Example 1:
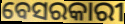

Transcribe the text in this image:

ବେସରକାରୀ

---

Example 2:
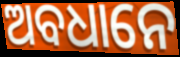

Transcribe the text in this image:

ଅବଧାନେ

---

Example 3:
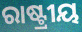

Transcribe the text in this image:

ରାଷ୍ଟ୍ରୀୟ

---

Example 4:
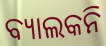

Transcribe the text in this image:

ବ୍ୟାଲକନି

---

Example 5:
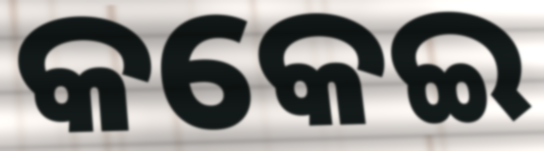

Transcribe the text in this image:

କକେଇ